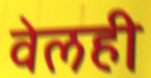
वेलही